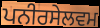
ਪਨੀਰਸੇਲਵਮ